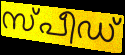
സ്പീഡ്